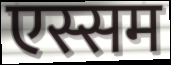
एस्सम